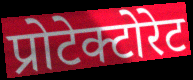
प्रोटेक्टोरेट